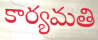
కార్యమతి